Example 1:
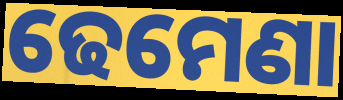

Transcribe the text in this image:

ଢେମେଣା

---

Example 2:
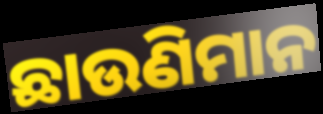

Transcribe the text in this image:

ଛାଉଣିମାନ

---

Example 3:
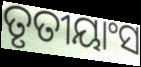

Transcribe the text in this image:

ତୃତୀୟାଂସ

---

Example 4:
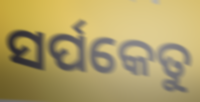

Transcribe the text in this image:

ସର୍ପକେତୁ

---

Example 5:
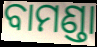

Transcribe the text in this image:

ବାମଣ୍ଡା